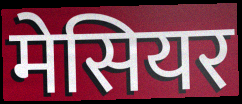
मेसियर